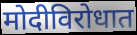
मोदीविरोधात